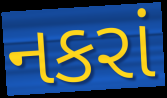
નકરાં